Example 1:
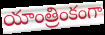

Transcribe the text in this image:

యాంత్రింకంగా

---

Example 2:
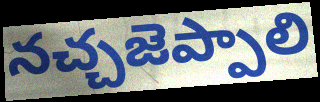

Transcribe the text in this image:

నచ్చజెప్పాలి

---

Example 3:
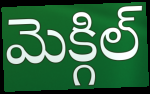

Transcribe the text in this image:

మెక్గిల్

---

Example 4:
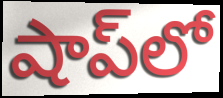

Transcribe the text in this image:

షాప్‌లో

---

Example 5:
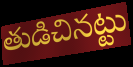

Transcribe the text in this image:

తుడిచినట్టు